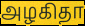
அழகிதா